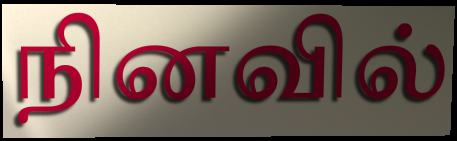
நினவில்